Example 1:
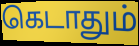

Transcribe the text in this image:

கெடாதும்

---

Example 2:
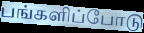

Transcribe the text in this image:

பங்களிப்போடு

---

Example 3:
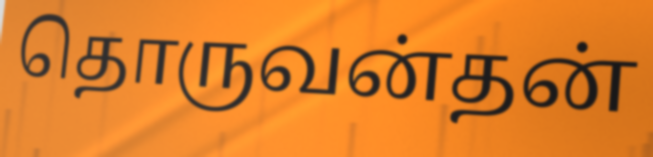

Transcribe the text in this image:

தொருவன்தன்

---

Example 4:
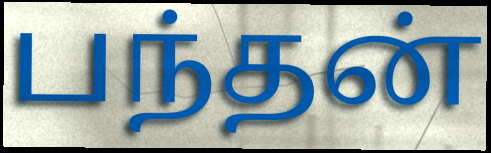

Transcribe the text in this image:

பந்தன்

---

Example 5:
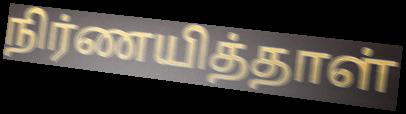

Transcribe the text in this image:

நிர்ணயித்தாள்